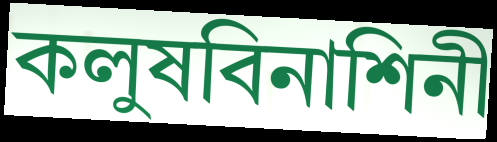
কলুষবিনাশিনী